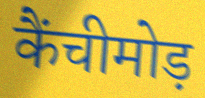
कैंचीमोड़